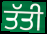
ਤੱਤੀ